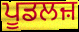
ਪੂਡਲਜ਼